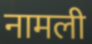
नामली